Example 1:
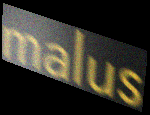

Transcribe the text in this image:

malus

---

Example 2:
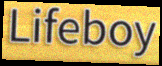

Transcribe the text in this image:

Lifeboy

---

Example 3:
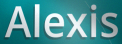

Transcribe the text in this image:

Alexis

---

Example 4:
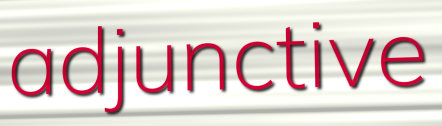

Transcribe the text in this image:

adjunctive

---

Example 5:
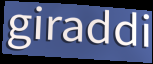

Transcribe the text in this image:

giraddi